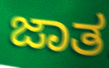
ಜಾತ